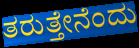
ತರುತ್ತೇನೆಂದು